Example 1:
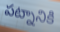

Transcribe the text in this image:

పట్నానికి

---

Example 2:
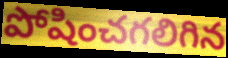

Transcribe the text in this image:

పోషించగలిగిన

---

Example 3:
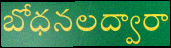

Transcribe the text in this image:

బోధనలద్వారా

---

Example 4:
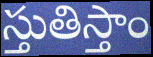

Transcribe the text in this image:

స్తుతిస్తాం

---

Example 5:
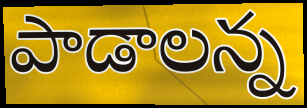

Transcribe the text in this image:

పాడాలన్న